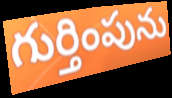
గుర్తింపును